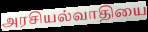
அரசியல்வாதியை